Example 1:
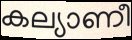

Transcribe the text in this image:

കല്യാണീ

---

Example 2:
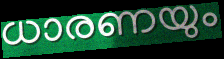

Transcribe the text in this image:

ധാരണയും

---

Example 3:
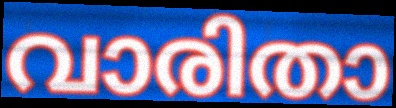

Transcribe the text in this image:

വാരിതാ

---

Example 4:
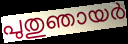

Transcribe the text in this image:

പുതുഞായർ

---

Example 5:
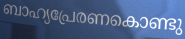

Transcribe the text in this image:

ബാഹ്യപ്രേരണകൊണ്ടു